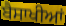
ਬੈਸਾਖੀਆਂ